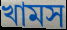
খামস